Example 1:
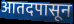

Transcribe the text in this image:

आतदपासून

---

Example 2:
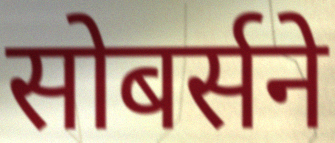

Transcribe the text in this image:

सोबर्सने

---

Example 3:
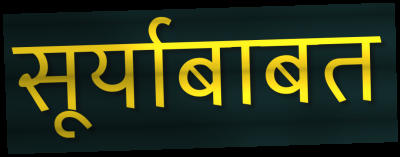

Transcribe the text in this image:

सूर्याबाबत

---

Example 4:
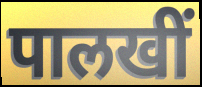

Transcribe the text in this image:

पालखीं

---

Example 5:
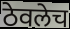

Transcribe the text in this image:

ठेवलेच